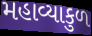
મહાવ્યાકુળ